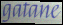
gatane